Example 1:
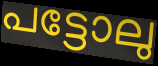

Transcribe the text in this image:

പട്ടോലു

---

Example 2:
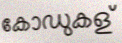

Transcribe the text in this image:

കോഡുകള്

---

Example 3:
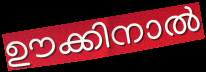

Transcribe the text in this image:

ഊക്കിനാൽ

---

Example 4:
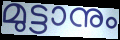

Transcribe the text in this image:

മുട്ടാനും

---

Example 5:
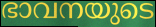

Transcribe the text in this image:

ഭാവനയുടെ